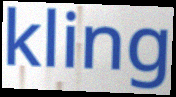
kling